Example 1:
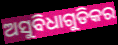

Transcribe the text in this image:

ଅସୁବିଧାଗୁଡିକର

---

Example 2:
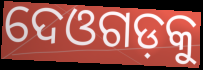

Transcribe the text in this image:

ଦେଓଗଡ଼କୁ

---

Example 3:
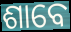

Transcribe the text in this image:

ଶାବେ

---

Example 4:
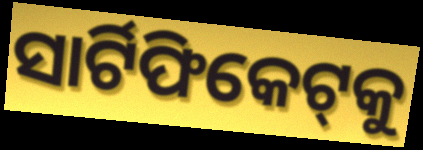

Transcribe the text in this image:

ସାର୍ଟିଫିକେଟ୍‌କୁ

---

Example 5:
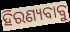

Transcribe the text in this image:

ହିରଣ୍ୟବାବୁ